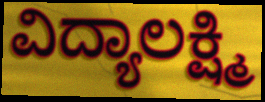
ವಿದ್ಯಾಲಕ್ಷ್ಮಿ